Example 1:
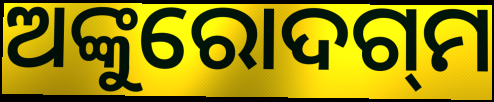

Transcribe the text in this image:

ଅଙ୍କୁରୋଦଗ୍‌ମ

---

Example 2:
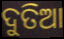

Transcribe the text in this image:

ଦୁତିଆ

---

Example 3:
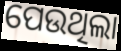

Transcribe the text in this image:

ପେଉଥିଲା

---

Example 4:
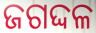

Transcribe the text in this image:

ଜଗଦ୍ଦଳ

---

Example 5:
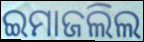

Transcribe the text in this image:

ଇମାଜଲିଲ